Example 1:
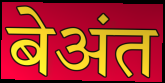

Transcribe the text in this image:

बेअंत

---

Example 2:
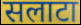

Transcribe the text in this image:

सलाटा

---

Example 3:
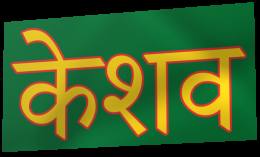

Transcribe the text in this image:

केशव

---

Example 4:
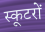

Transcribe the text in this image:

स्कूटरों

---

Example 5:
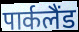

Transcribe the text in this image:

पार्कलैंड